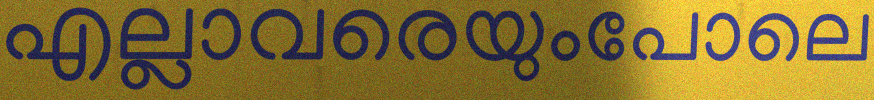
എല്ലാവരെയുംപോലെ